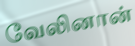
வேலினான்